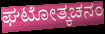
ಘಟೋತ್ಕಚನಂ